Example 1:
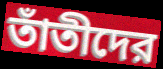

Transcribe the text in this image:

তাঁতীদের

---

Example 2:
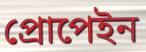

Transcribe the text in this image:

প্রোপেইন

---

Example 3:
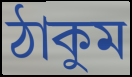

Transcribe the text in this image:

ঠাকুম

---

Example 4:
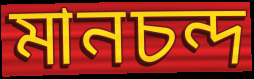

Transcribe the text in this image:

মানচন্দ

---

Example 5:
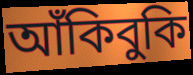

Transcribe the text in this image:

আঁকিবুকি